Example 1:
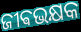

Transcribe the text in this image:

ଜୀଵଭକ୍ଷକ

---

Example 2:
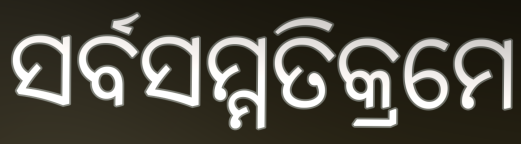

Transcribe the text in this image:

ସର୍ବସମ୍ମତିକ୍ରମେ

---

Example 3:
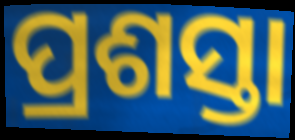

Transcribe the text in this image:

ପ୍ରଶସ୍ତା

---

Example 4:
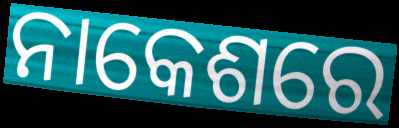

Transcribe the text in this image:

ନାକେଶରେ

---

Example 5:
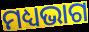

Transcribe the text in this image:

ମଧ୍ୟଭାଗ